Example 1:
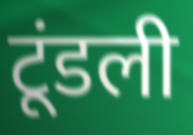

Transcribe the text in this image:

टूंडली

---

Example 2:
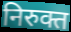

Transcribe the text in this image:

निरुक्त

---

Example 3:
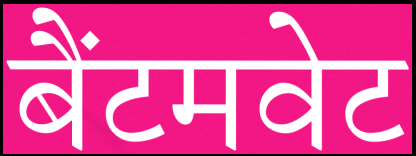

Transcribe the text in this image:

बैंटमवेट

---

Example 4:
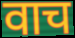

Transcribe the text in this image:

वाच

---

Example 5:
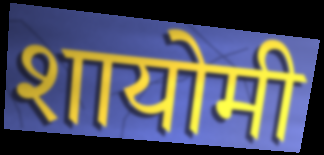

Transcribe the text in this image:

शायोमी